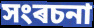
সংৰচনা